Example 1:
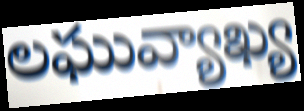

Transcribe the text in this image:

లఘువ్యాఖ్య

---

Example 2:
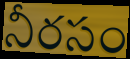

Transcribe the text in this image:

నీరసం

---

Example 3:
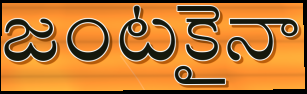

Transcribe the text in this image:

జంటకైనా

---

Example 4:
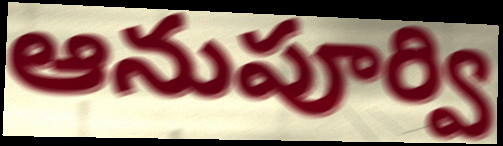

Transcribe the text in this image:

ఆనుపూర్వి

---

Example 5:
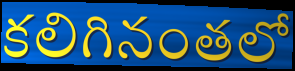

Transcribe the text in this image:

కలిగినంతలో